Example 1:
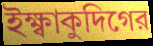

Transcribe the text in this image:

ইক্ষ্বাকুদিগের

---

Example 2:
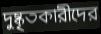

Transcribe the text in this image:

দুষ্কৃতকারীদের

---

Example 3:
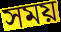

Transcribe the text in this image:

সময়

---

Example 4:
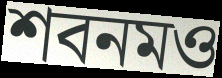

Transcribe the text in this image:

শবনমও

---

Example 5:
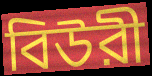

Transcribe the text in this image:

বিউরী